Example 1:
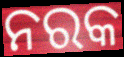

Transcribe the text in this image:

ନରକ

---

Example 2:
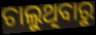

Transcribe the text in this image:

ଚାଲୁଥିବାରୁ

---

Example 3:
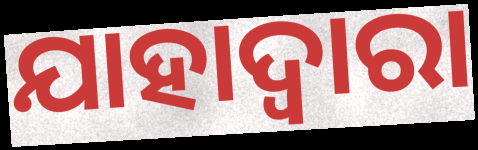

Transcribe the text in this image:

ଯାହାଦ୍ୱାରା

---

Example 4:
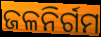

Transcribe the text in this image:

ଜଳନିର୍ଗମ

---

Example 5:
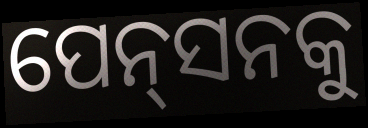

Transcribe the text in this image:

ପେନ୍‌ସନକୁ